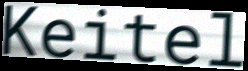
Keitel